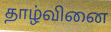
தாழ்வினை